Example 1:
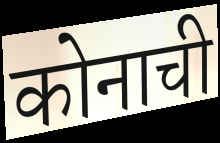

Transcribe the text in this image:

कोनाची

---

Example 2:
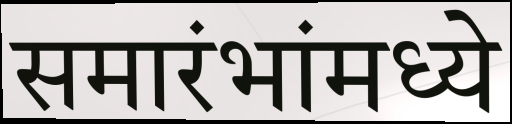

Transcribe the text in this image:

समारंभांमध्ये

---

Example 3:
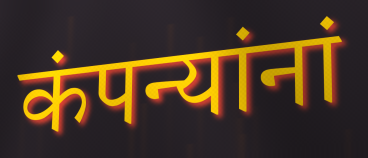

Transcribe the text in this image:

कंपन्यांनां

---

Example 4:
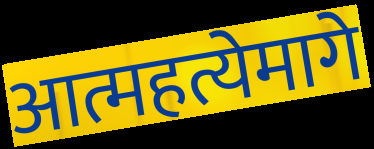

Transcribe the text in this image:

आत्महत्येमागे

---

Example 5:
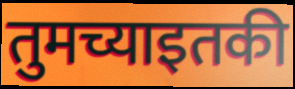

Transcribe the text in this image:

तुमच्याइतकी